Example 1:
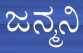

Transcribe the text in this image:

ಜನ್ಮನಿ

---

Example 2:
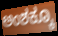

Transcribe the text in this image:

ಅಂಶಕ್ಕೂ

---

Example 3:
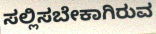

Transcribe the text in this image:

ಸಲ್ಲಿಸಬೇಕಾಗಿರುವ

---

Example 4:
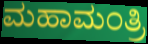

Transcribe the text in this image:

ಮಹಾಮಂತ್ರಿ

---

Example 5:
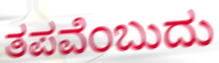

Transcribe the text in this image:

ತಪವೆಂಬುದು